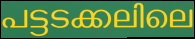
പട്ടടക്കലിലെ